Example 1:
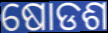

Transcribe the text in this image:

ଷୋଡଶ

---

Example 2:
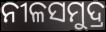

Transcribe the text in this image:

ନୀଳସମୁଦ୍ର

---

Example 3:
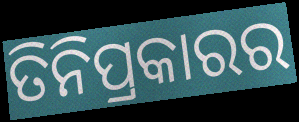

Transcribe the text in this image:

ତିନିପ୍ରକାରର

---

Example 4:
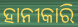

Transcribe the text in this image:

ହାନୀକାରି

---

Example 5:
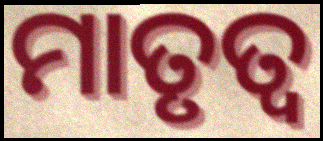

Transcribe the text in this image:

ମାତୃତ୍ୱ